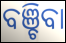
ବଞ୍ଚିବା